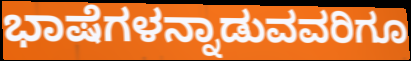
ಭಾಷೆಗಳನ್ನಾಡುವವರಿಗೂ